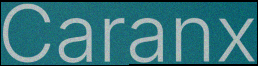
Caranx